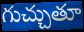
గుచ్చుతూ